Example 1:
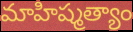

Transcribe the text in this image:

మాహిష్మత్యాం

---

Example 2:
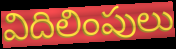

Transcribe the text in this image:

విదిలింపులు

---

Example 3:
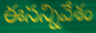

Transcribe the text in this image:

ఈసన్నివేశం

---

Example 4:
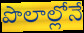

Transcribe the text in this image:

పొలాల్లోనే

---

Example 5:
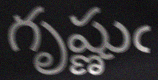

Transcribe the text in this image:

గృష్ణుఁ